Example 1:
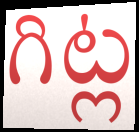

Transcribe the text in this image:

గిట్ల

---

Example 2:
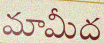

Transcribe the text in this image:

మామీద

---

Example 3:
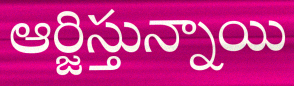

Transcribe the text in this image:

ఆర్జిస్తున్నాయి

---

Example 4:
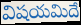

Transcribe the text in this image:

విషయమిదే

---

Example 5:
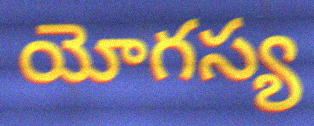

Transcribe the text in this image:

యోగస్య